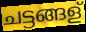
ചട്ടങ്ങള്